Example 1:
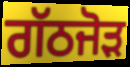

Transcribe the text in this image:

ਗੱਠਜੋੜ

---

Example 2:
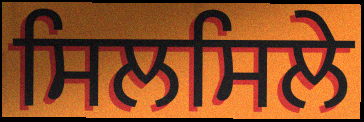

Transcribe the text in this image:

ਸਿਲਸਿਲੇ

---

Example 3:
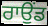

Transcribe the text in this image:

ਰਾਉਂਡ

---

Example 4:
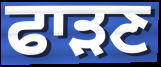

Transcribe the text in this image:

ਫਾੜਣ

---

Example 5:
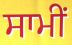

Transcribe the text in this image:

ਸਾਮੀਂ